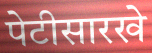
पेटीसारखे